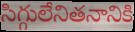
సిగ్గులేనితనానికి